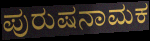
ಪುರುಷನಾಮಕ